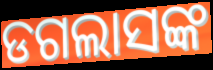
ଡଗଲାସଙ୍କ